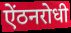
ऐंठनरोधी